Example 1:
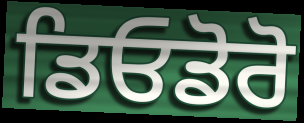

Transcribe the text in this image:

ਡਿਓਡੋਰੋ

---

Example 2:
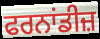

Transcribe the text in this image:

ਫਰਨਾਂਡੀਜ਼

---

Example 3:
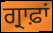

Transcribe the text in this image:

ਗ੍ਰਾਫ਼ਾਂ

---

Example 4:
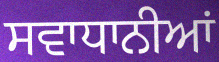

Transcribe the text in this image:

ਸਵਾਧਾਨੀਆਂ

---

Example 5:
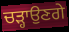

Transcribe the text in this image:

ਚੜ੍ਹਾਉਣਗੇ